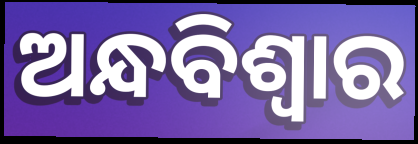
ଅନ୍ଧବିଶ୍ୱାର